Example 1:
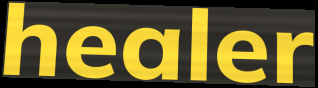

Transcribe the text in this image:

healer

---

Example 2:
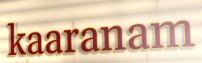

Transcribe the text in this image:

kaaranam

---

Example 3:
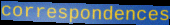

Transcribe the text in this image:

correspondences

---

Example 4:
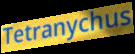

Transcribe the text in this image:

Tetranychus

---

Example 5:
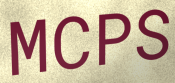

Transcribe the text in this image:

MCPS